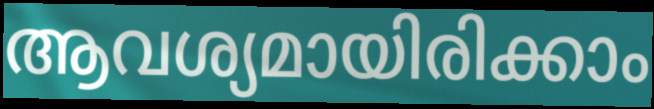
ആവശ്യമായിരിക്കാം